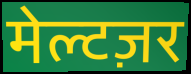
मेल्टज़र